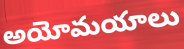
అయోమయాలు